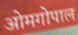
ओमगोपाल